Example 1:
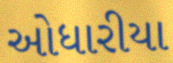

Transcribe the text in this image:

ઓધારીયા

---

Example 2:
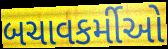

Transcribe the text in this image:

બચાવકર્મીઓ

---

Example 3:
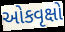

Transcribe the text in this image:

ઓકવૃક્ષો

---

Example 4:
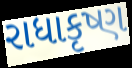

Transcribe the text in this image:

રાધાકૃષ્ણ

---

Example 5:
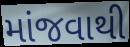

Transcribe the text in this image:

માંજવાથી